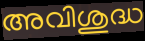
അവിശുദ്ധ